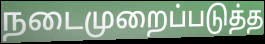
நடைமுறைப்படுத்த